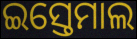
ଇସ୍ତେମାଲ